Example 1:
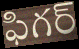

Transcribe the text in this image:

ఫిగర్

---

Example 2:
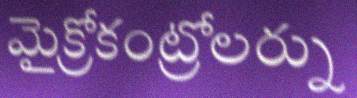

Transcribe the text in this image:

మైక్రోకంట్రోలర్ను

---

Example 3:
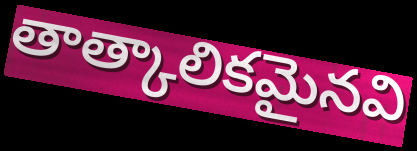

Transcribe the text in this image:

తాత్కాలికమైనవి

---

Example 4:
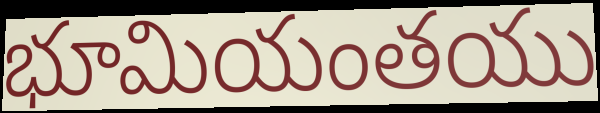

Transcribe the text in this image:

భూమియంతయు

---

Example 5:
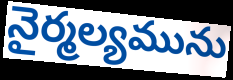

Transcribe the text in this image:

నైర్మల్యమును